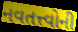
નવતત્ત્વોની